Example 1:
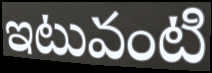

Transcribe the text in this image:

ఇటువంటి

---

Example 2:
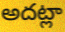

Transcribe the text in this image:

అదట్లా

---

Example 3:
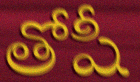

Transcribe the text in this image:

తోషీ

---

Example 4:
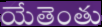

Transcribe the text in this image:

యేతెంతు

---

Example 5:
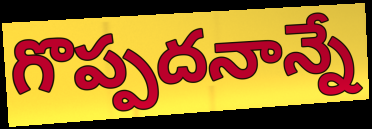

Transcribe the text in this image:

గొప్పదనాన్నే